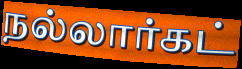
நல்லார்கட்